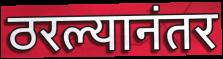
ठरल्यानंतर